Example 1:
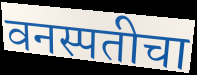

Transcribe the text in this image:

वनस्पतीचा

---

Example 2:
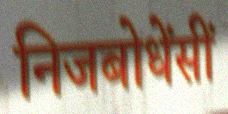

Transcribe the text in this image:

निजबोधेंसीं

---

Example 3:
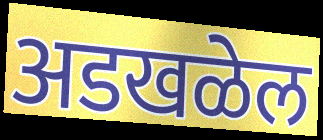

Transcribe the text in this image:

अडखळेल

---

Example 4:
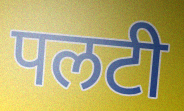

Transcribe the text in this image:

पलटी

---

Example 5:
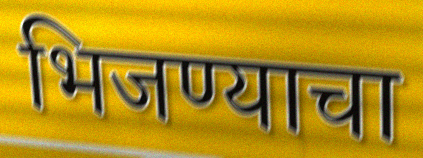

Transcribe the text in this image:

भिजण्याचा